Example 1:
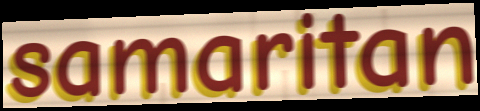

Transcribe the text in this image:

samaritan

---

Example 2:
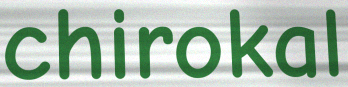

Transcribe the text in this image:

chirokal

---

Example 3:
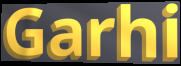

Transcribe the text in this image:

Garhi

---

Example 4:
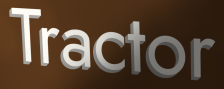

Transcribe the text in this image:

Tractor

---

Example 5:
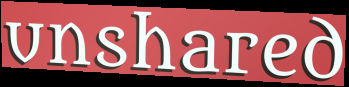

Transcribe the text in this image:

unshared